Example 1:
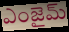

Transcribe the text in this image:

ఎంజైమ్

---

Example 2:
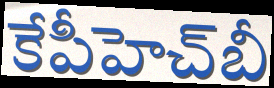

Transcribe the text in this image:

కేపీహెచ్‌బీ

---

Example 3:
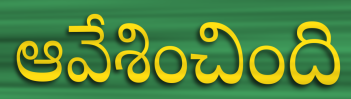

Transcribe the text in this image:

ఆవేశించింది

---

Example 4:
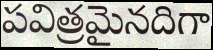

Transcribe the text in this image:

పవిత్రమైనదిగా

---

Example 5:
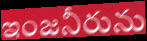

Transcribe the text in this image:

ఇంజనీరును